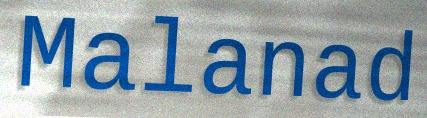
Malanad